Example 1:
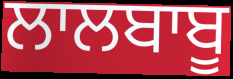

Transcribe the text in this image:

ਲਾਲਬਾਬੂ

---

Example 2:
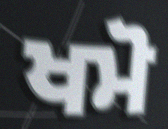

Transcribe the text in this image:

ਖਮੋ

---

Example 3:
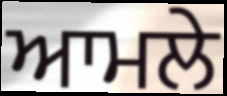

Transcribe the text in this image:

ਆਮਲੇ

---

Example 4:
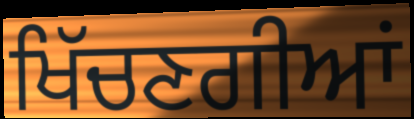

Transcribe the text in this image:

ਖਿੱਚਣਗੀਆਂ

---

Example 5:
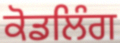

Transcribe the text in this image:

ਕੋਡਲਿੰਗ